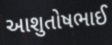
આશુતોષભાઈ